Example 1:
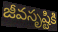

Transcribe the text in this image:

జీవసృష్టికి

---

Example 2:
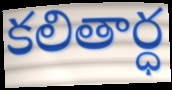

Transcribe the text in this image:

కలితార్ధ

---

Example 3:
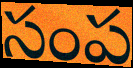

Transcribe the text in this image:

సంప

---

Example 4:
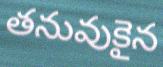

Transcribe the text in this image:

తనువుకైన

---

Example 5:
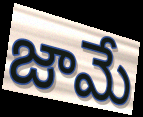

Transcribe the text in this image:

జామే